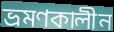
ভ্রমণকালীন